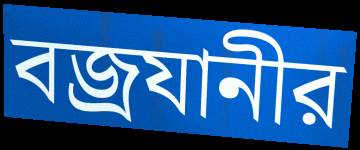
বজ্রযানীর